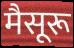
मैसूरू